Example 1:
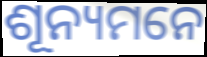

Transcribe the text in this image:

ଶୂନ୍ୟମନେ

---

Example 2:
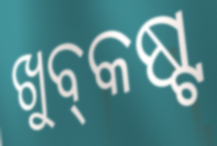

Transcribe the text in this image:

ଖୁବ୍‌କଷ୍ଟ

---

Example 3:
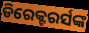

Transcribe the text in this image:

ଡିରେକ୍ଟରର୍ସଙ୍କ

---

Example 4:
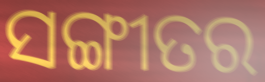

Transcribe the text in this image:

ସଙ୍ଗୀତର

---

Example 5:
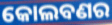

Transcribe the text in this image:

କୋଲବଣର